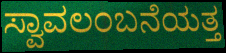
ಸ್ವಾವಲಂಬನೆಯತ್ತ